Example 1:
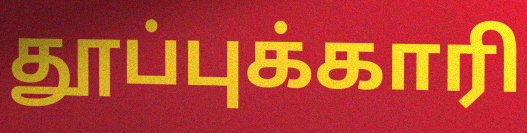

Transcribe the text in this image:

தூப்புக்காரி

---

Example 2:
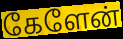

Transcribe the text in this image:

கேளேன்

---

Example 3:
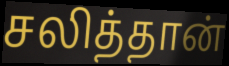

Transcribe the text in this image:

சலித்தான்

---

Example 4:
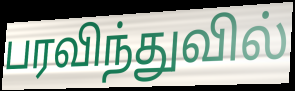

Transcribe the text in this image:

பரவிந்துவில்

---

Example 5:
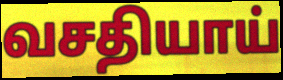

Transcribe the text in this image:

வசதியாய்